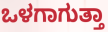
ಒಳಗಾಗುತ್ತಾ